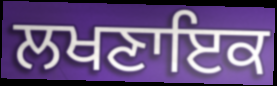
ਲਖਣਾਇਕ